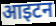
आइटन